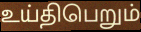
உய்திபெறும்